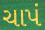
ચાપં